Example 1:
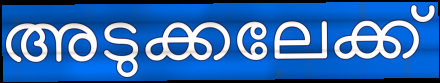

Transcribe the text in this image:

അടുക്കലേക്ക്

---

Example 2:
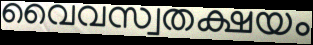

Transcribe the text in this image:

വൈവസ്വതക്ഷയം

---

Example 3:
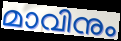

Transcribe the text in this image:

മാവിനും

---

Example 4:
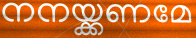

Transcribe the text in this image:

നനയ്ക്കണമേ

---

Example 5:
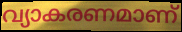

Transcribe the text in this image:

വ്യാകരണമാണ്